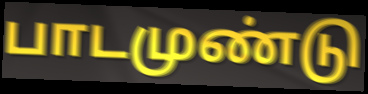
பாடமுண்டு